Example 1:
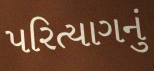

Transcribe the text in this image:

પરિત્યાગનું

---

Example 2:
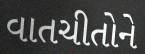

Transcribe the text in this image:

વાતચીતોને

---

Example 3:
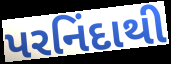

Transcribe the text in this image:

પરનિંદાથી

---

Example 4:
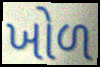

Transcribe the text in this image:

ખોળ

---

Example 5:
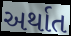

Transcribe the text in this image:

અર્થાત